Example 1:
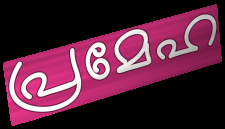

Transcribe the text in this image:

പ്രമേഹ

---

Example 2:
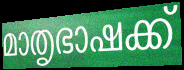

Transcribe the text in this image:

മാതൃഭാഷക്ക്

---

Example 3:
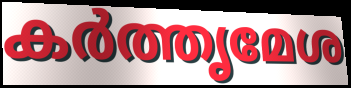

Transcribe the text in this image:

കർത്തൃമേശ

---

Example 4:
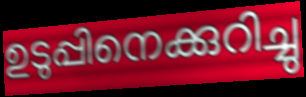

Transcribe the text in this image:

ഉടുപ്പിനെക്കുറിച്ചു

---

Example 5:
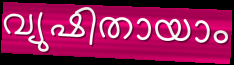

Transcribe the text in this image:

വ്യുഷിതായാം